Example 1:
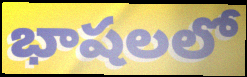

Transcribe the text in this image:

భాషలలో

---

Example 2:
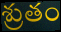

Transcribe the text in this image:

శ్రుతం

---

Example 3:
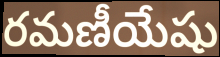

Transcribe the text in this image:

రమణీయేషు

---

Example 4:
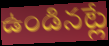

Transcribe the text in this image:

ఉండినట్లే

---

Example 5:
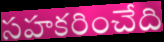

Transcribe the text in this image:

సహకరించేది